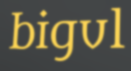
bigul